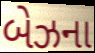
બેઝના